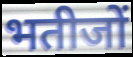
भतीजों